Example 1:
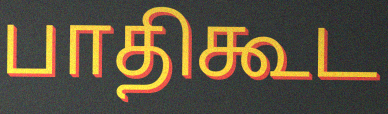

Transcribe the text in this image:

பாதிகூட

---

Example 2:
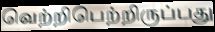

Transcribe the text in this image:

வெற்றிபெற்றிருப்பது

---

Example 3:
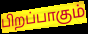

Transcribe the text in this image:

பிறப்பாகும்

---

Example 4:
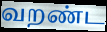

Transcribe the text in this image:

வறண்ட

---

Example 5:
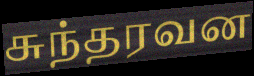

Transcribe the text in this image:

சுந்தரவன